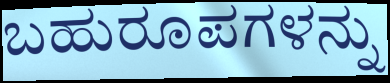
ಬಹುರೂಪಗಳನ್ನು